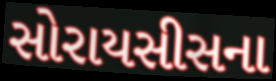
સોરાયસીસના